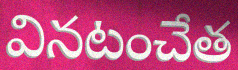
వినటంచేత